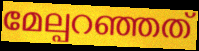
മേല്പറഞ്ഞത്